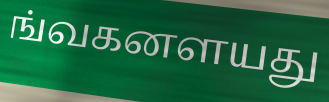
ங்வகனளயது